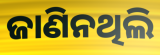
ଜାଣିନଥିଲି